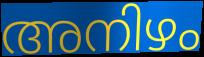
അനിഴം